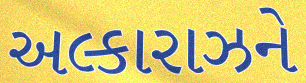
અલ્કારાઝને